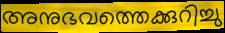
അനുഭവത്തെക്കുറിച്ചു